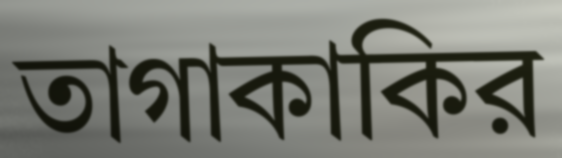
তাগাকাকির